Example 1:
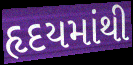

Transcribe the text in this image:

હૃદયમાંથી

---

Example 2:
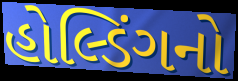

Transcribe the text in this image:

હોલ્ડિંગનો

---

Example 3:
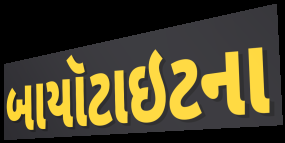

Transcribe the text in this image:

બાયૉટાઇટના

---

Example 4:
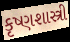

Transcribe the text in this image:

કૃષ્ણશાસ્ત્રી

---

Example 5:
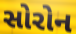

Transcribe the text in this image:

સોરોન